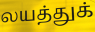
லயத்துக்